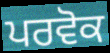
ਪਰਵੋਕ